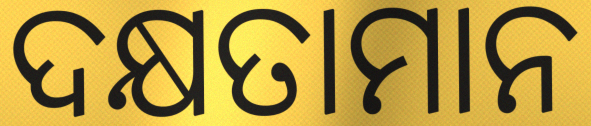
ଦକ୍ଷତାମାନ